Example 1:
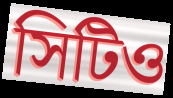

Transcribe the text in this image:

সিটিও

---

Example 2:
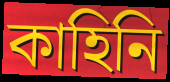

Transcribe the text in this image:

কাহিনি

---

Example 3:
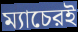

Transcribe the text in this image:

ম্যাচেরই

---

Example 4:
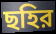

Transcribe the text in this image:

ছহির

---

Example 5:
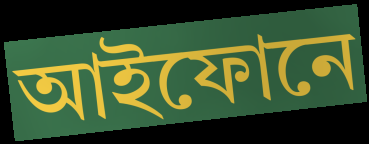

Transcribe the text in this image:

আইফোনে